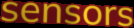
sensors